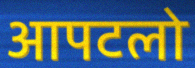
आपटलो